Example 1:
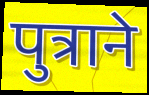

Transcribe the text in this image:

पुत्राने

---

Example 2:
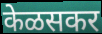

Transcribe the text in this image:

केळसकर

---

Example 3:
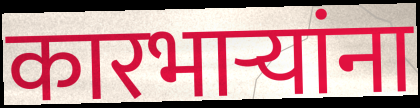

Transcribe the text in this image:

कारभाऱ्यांना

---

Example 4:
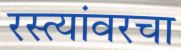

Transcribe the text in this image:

रस्त्यांवरचा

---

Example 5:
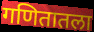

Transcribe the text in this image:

गणितातला